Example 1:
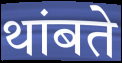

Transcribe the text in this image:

थांबते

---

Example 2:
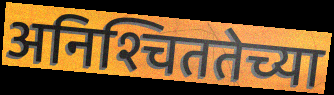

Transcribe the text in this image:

अनिश्चिततेच्या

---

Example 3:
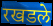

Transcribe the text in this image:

रखडले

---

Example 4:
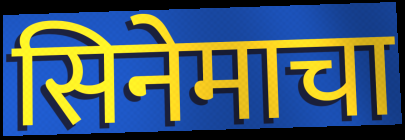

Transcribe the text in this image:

सिनेमाचा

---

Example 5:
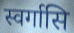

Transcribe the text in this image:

स्वर्गासि